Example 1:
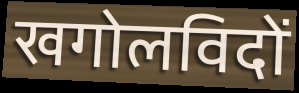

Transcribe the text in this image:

खगोलविदों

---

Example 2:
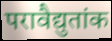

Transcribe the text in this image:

परावैद्युतांक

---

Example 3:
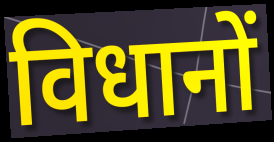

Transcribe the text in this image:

विधानों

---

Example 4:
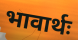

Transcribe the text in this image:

भावार्थः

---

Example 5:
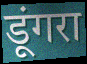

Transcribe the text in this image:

डूंगरा